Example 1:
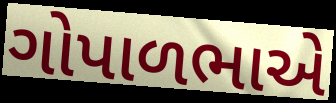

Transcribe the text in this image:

ગોપાળભાએ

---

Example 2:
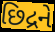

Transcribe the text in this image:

છિદ્રને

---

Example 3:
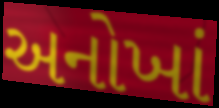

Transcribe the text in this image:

અનોખાં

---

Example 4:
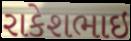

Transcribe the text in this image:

રાકેશભાઇ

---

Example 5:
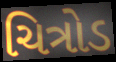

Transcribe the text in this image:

ચિત્રોડ